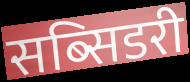
सब्सिडरी